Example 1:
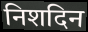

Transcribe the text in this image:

निशदिन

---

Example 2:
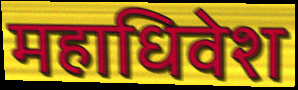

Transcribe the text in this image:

महाधिवेश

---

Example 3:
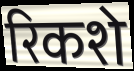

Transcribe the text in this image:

रिकशे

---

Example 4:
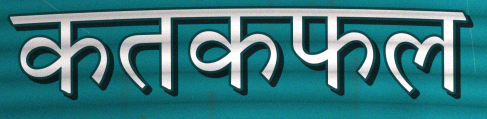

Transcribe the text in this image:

कतकफल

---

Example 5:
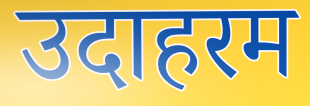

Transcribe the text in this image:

उदाहरम